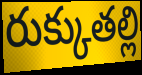
రుక్కుతల్లి